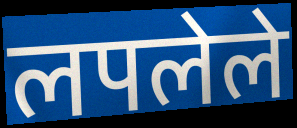
लपलेले